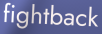
fightback